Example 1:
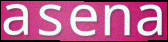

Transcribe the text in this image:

asena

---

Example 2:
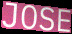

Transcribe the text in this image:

JOSE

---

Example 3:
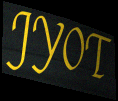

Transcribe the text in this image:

JYOT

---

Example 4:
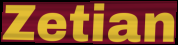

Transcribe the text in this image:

Zetian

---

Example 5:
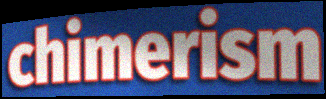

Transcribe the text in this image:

chimerism